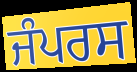
ਜੰਪਰਸ